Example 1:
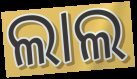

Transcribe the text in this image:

ଲାଲ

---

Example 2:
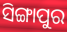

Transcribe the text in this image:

ସିଙ୍ଗାପୁର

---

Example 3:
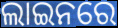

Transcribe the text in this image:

ଲାଇନରେ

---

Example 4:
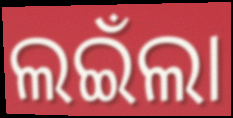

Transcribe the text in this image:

ଲଇଁଲା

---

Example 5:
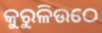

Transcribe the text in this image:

କୁରୁଳିଉଠେ